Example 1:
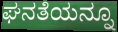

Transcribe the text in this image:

ಘನತೆಯನ್ನೂ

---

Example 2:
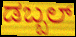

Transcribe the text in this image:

ಡಬ್ಬಲ್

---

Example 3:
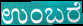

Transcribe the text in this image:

ಉಂಬರೆ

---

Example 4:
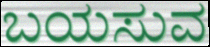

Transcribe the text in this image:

ಬಯಸುವ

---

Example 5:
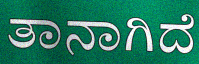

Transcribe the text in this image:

ತಾನಾಗಿದೆ